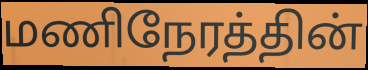
மணிநேரத்தின்